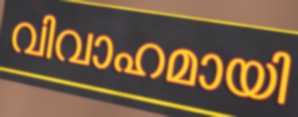
വിവാഹമായി